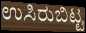
ಉಸಿರುಬಿಟ್ಟ